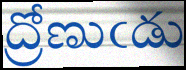
ద్రోణుఁడు